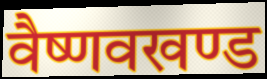
वैष्णवखण्ड